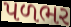
પળભર